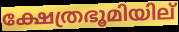
ക്ഷേത്രഭൂമിയില്